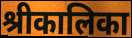
श्रीकालिका